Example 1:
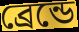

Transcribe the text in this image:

ব্রেন্ডে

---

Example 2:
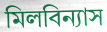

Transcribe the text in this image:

মিলবিন্যাস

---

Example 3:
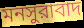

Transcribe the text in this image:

মনসুরাবাদ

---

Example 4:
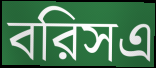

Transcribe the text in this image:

বরিসএ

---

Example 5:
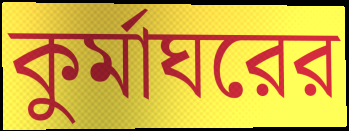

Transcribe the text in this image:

কুর্মাঘরের